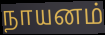
நாயனம்